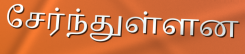
சேர்ந்துள்ளன